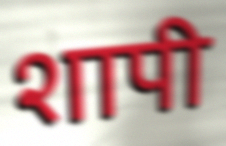
शापी